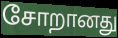
சோறானது